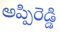
అప్పిరెడ్డి